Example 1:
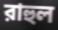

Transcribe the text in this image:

রাহুল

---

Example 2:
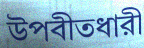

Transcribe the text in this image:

উপবীতধারী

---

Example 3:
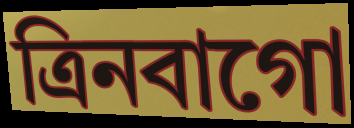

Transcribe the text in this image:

ত্রিনবাগো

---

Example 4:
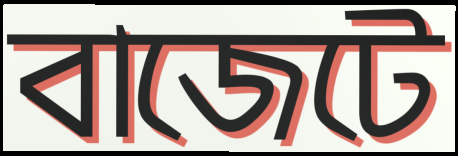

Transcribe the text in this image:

বাজেটে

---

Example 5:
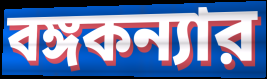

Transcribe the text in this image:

বঙ্গকন্যার